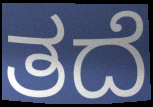
ತದೆ